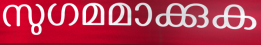
സുഗമമാക്കുക